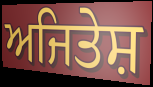
ਅਜਿਤੇਸ਼